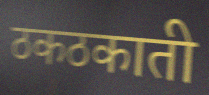
ठकठकाती